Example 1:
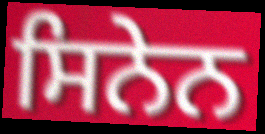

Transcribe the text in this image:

ਸਿਨੇਨ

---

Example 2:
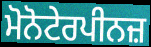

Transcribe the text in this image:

ਮੋਨੋਟੇਰਪੀਨਜ਼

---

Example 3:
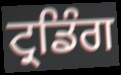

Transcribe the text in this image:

ਟ੍ਰਡਿੰਗ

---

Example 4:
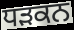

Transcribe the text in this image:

ਧੜਕਨ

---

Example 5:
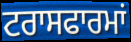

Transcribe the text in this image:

ਟਰਾਸਫਾਰਮਾਂ